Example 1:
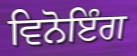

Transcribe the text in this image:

ਵਿਨੋਇੰਗ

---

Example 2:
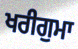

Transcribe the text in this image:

ਖਰੀਗੁਮਾ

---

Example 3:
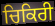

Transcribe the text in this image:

ਚਿਕਿਰੀ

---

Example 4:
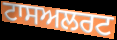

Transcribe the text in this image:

ਟਾਸਅਲਰਟ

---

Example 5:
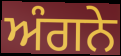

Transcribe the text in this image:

ਅੰਗਨੇ